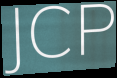
JCP